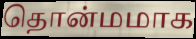
தொன்மமாக